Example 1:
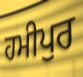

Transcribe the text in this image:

ਹਮੀਪੁਰ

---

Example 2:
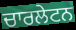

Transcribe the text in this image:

ਚਾਰਲੇਟਨ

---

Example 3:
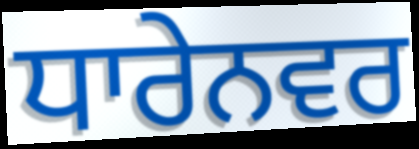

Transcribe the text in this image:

ਧਾਰੇਨਵਰ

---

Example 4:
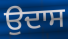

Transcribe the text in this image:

ਉਦਾਸ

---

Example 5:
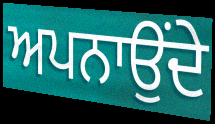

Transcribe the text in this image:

ਅਪਨਾਉਂਦੇ